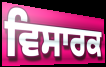
ਵਿਸਾਰਕ